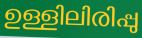
ഉള്ളിലിരിപ്പു